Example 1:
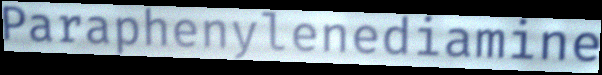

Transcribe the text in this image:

Paraphenylenediamine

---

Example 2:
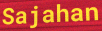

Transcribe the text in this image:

Sajahan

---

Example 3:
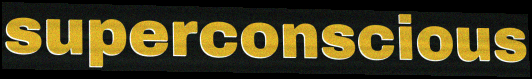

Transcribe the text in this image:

superconscious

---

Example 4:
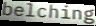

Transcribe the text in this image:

belching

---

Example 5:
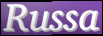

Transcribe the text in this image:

Russa